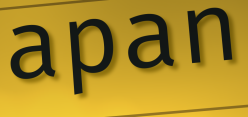
apan